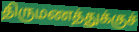
திருமணத்துக்குச்